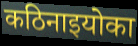
कठिनाइयोका